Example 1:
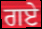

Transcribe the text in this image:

ਗਏ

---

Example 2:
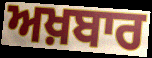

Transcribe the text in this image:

ਅਖ਼ਬਾਰ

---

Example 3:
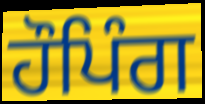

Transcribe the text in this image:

ਹੌਪਿੰਗ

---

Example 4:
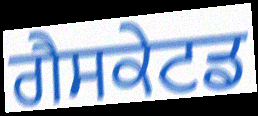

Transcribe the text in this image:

ਗੈਸਕੇਟਡ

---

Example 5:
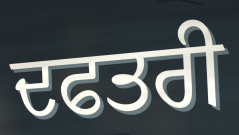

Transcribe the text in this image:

ਦਫਤਰੀ